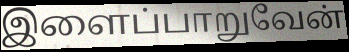
இளைப்பாறுவேன்